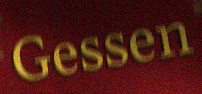
Gessen